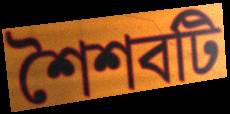
শৈশবটি